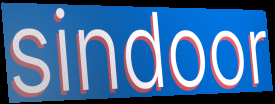
sindoor